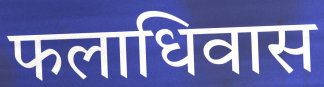
फलाधिवास